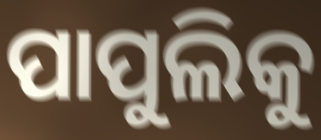
ପାପୁଲିକୁ